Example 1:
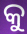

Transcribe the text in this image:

କୁ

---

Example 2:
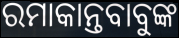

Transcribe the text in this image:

ରମାକାନ୍ତବାବୁଙ୍କ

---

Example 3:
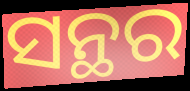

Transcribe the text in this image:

ସନ୍ଥର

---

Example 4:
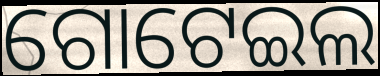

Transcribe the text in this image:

ଗୋଟେଇଲ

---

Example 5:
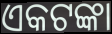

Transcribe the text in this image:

ଏକଟଙ୍କା